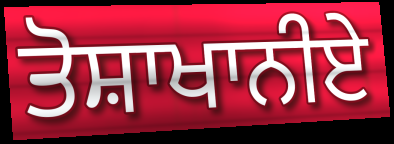
ਤੋਸ਼ਾਖਾਨੀਏ